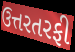
ઉત્તરતરફી